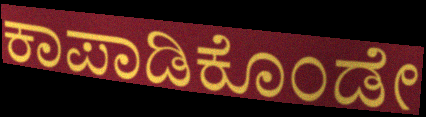
ಕಾಪಾಡಿಕೊಂಡೇ